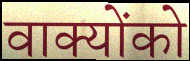
वाक्योंको